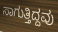
ಸಾಗುತ್ತಿದ್ದವು